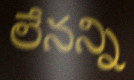
లేనన్ని